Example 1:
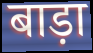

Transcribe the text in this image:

बाड़ा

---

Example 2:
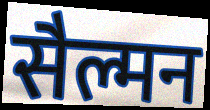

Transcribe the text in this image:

सैल्मन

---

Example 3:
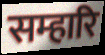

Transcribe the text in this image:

सम्हारि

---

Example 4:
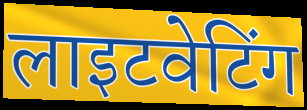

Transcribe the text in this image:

लाइटवेटिंग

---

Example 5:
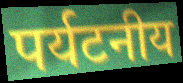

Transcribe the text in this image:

पर्यटनीय